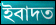
ইবাদত